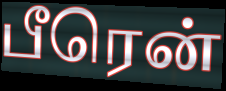
பீரென்